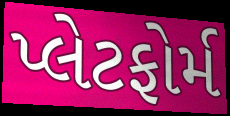
પ્લેટફોર્મ